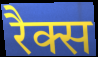
रैक्स